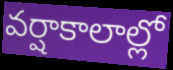
వర్షాకాలాల్లో